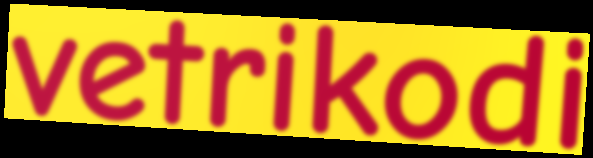
vetrikodi